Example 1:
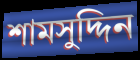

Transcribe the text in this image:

শামসুদ্দিন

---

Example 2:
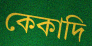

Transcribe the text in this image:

কেকাদি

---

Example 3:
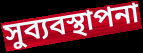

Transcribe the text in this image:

সুব্যবস্থাপনা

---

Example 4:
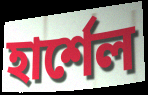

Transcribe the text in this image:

হার্শেল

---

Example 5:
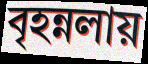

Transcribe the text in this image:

বৃহন্নলায়